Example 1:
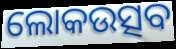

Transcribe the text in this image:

ଲୋକଉତ୍ସବ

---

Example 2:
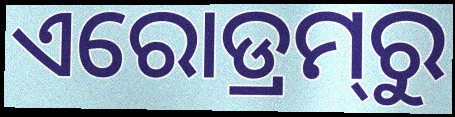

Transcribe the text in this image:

ଏରୋଡ୍ରମ୍‍ରୁ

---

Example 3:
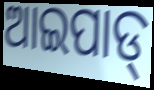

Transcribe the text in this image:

ଆଇପାଡ୍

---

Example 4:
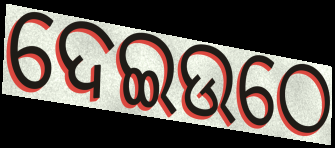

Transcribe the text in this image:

ଦେଇଉଠେ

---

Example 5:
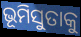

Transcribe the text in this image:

ଭୂମିସୁତାକୁ